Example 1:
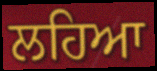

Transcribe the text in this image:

ਲਹਿਆ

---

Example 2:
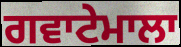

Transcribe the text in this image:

ਗਵਾਟੇਮਾਲਾ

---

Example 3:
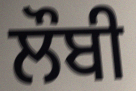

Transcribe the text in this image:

ਲੌਬੀ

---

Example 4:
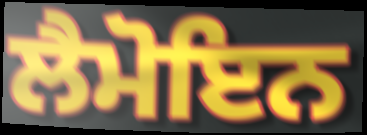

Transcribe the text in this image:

ਲੈਮੋਇਨ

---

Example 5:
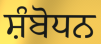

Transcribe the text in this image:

ਸ਼ੰਬੋਧਨ